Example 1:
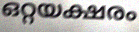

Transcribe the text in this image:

ഒറ്റയക്ഷരം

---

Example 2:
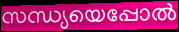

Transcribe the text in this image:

സന്ധ്യയെപ്പോൽ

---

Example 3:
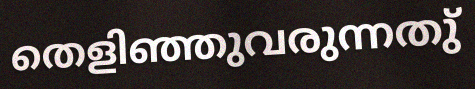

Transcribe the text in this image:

തെളിഞ്ഞുവരുന്നതു്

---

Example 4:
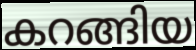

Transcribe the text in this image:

കറങ്ങിയ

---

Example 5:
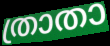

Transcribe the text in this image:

ത്രാതാ